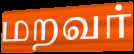
மறவர்